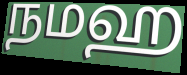
நமஹ